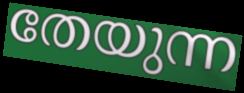
തേയുന്ന